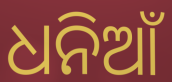
ଧନିଆଁ